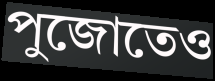
পুজোতেও